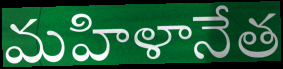
మహిళానేత